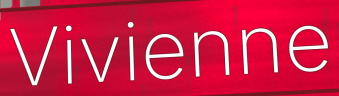
Vivienne